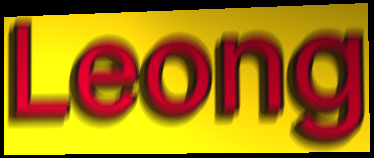
Leong